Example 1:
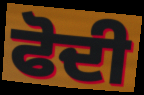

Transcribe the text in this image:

ਫੋਦੀ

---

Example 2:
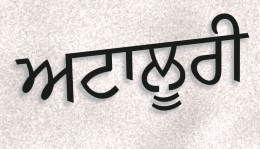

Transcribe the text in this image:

ਅਟਾਲੂਰੀ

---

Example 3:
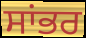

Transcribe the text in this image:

ਸਾਂਭਰ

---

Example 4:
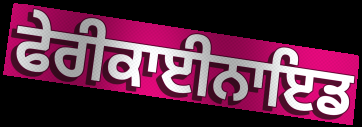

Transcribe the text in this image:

ਫੇਰੀਕਾਈਨਾਇਡ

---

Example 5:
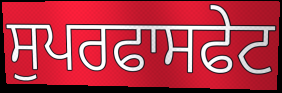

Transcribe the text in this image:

ਸੁਪਰਫਾਸਫੇਟ